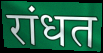
रांधत